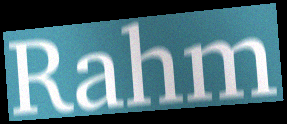
Rahm